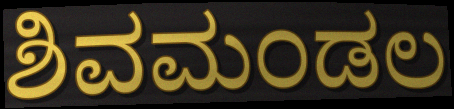
ಶಿವಮಂಡಲ